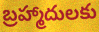
బ్రహ్మాదులకు